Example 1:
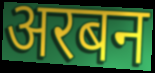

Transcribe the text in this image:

अरबन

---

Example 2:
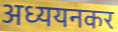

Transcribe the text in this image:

अध्ययनकर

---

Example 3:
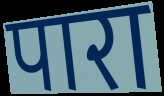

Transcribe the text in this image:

पारा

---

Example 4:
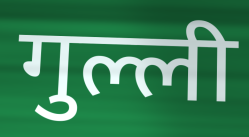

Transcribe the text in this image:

गुल्ली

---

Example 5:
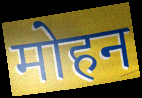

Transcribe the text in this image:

मोहन